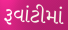
રૂવાંટીમાં